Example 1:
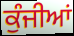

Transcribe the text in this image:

ਕੁੰਜੀਆਂ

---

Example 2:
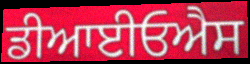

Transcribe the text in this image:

ਡੀਆਈਓਐਸ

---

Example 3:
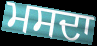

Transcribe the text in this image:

ਮਸਦਾ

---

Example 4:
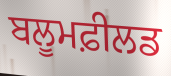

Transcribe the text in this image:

ਬਲੂਮਫ਼ੀਲਡ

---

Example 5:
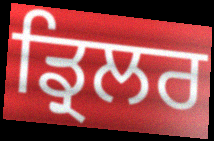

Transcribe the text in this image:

ਡ੍ਰਿਲਰ